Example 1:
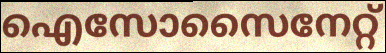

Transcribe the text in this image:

ഐസോസൈനേറ്റ്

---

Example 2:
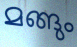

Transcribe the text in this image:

മങ്ങും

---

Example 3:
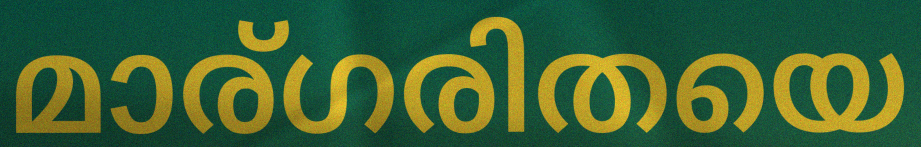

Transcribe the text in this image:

മാര്ഗരിതയെ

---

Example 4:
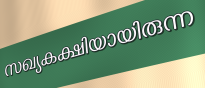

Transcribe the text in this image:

സഖ്യകക്ഷിയായിരുന്ന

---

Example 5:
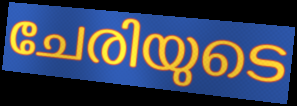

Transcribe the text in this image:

ചേരിയുടെ